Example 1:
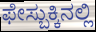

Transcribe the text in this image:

ಫೇಸ್ಬುಕ್ಕಿನಲ್ಲಿ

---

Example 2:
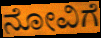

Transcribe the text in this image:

ನೋವಿಗೆ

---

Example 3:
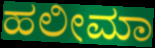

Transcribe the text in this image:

ಹಲೀಮಾ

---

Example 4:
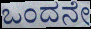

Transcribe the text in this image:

ಒಂದನೇ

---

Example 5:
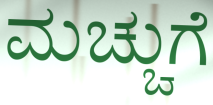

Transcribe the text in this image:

ಮಚ್ಚುಗೆ